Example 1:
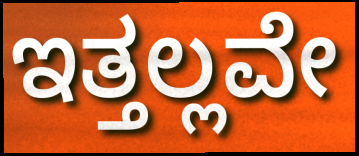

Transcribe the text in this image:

ಇತ್ತಲ್ಲವೇ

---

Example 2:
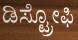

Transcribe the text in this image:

ಡಿಸ್ಟ್ರೋಫಿ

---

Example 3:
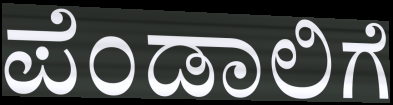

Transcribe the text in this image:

ಪೆಂಡಾಲಿಗೆ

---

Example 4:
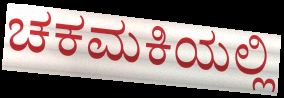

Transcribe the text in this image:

ಚಕಮಕಿಯಲ್ಲಿ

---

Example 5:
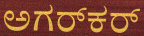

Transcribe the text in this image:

ಅಗರ್‌ಕರ್